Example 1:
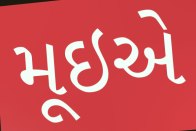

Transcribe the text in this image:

મૂઇએ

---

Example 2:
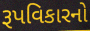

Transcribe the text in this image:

રૂપવિકારનો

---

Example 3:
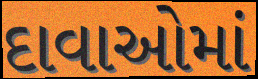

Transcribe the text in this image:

દાવાઓમાં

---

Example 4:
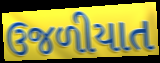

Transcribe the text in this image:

ઉજળીયાત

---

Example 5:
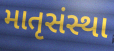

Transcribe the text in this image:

માતૃસંસ્થા